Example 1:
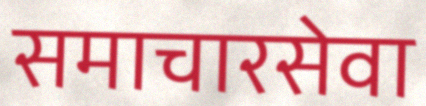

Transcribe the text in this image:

समाचारसेवा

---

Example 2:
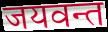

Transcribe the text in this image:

जयवन्त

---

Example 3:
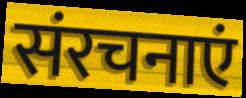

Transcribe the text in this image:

संरचनाएं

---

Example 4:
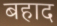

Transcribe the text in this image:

बहाद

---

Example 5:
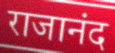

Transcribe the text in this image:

राजानंद